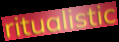
ritualistic